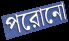
পরোনো